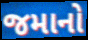
જમાનો